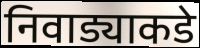
निवाड्याकडे